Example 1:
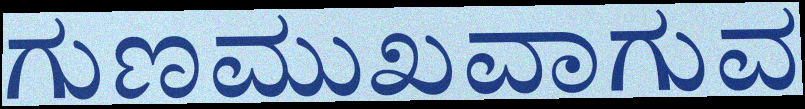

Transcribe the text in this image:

ಗುಣಮುಖವಾಗುವ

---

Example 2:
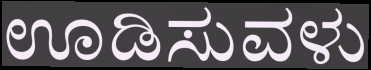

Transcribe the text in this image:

ಊಡಿಸುವಳು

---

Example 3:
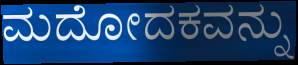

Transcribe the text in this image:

ಮದೋದಕವನ್ನು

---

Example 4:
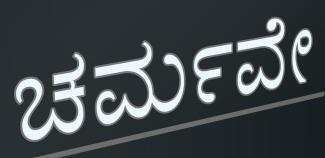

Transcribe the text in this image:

ಚರ್ಮವೇ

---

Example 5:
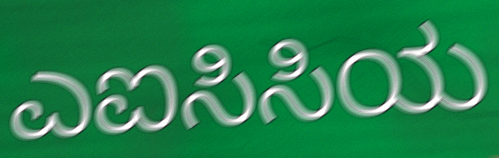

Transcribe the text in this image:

ಎಐಸಿಸಿಯ